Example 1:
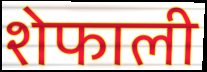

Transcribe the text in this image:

शेफाली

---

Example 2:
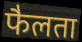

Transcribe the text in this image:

फैलता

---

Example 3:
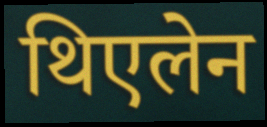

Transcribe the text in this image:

थिएलेन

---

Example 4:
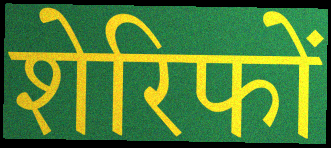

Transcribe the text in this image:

शेरिफों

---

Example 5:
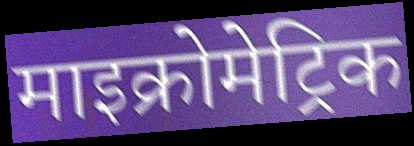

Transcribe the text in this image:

माइक्रोमेट्रिक